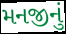
મનજીનું